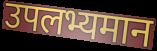
उपलभ्यमान